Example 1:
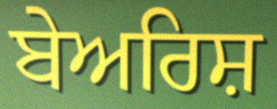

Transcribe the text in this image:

ਬੇਅਰਿਸ਼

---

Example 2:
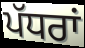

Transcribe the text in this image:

ਪੱਧਰਾਂ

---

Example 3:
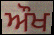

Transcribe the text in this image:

ਔਖ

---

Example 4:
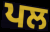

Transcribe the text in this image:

ਪਲ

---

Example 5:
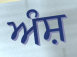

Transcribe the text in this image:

ਅੰਸ਼